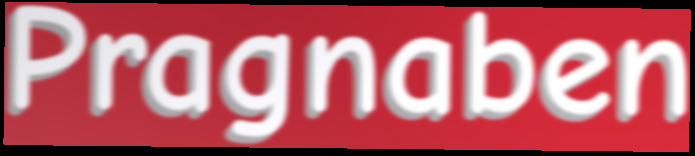
Pragnaben